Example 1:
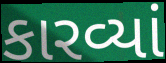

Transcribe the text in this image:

કારવ્યાં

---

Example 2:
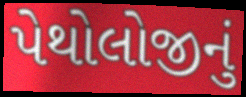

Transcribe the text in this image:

પેથોલોજીનું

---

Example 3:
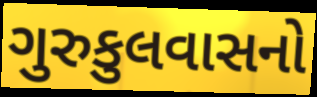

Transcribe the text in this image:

ગુરુકુલવાસનો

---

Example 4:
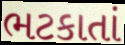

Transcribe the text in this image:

ભટકાતાં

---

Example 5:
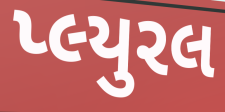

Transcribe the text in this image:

પ્લ્યુરલ